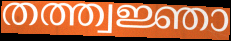
തത്ത്വജ്ഞാ